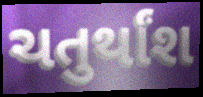
ચતુર્થાંશ